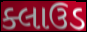
ક્લાઉડ